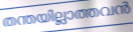
തന്തയില്ലാത്തവൻ